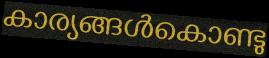
കാര്യങ്ങൾകൊണ്ടു